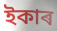
ইকাৰ